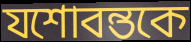
যশোবন্তকে